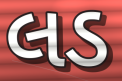
લડ